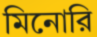
মিনোরি